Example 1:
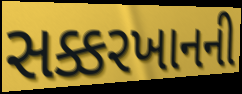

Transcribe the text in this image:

સક્કરખાનની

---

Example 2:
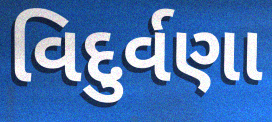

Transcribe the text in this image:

વિદુર્વણા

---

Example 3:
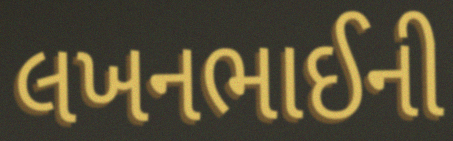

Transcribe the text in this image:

લખનભાઈની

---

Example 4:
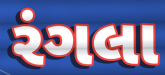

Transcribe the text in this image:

રંગલા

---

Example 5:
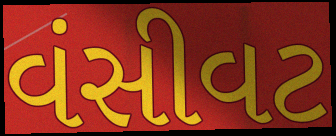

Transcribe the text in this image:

વંસીવટ